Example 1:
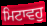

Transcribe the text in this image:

ਮਿਟਾਵਹੁ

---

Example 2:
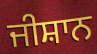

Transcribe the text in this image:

ਜੀਸ਼ਾਨ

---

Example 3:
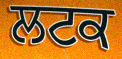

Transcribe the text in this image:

ਲਟਕ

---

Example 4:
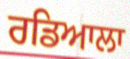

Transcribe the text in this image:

ਰਡਿਆਲਾ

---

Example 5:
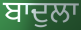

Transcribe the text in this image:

ਬਾਦੁਲਾ